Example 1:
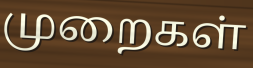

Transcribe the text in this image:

முறைகள்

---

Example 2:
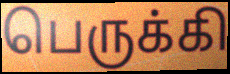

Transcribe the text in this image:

பெருக்கி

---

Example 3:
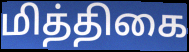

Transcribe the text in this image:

மித்திகை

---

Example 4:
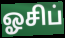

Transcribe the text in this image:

ஓசிப்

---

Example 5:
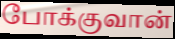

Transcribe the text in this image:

போக்குவான்